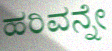
ಹರಿವನ್ನೇ